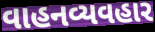
વાહનવ્યવહાર